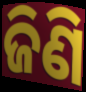
ଜିଣି